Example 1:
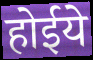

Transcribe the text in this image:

होईये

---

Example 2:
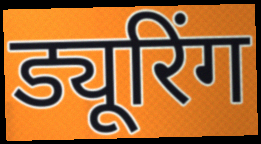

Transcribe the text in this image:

ड्यूरिंग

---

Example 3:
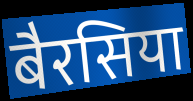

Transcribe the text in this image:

बैरसिया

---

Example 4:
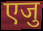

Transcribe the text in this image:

एजु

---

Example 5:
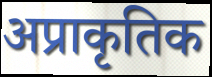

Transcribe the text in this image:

अप्राकृतिक